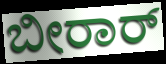
ಬೀರಾರ್